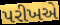
પરીખએ